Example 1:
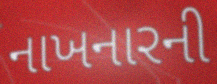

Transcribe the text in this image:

નાખનારની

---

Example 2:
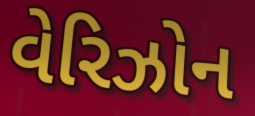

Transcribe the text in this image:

વેરિઝોન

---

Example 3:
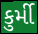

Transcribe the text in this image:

કુર્મી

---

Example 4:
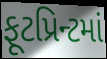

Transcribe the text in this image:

ફૂટપ્રિન્ટમાં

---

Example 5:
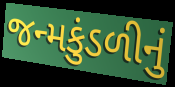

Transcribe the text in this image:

જન્મકુંડળીનું